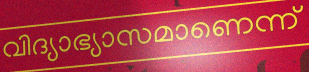
വിദ്യാഭ്യാസമാണെന്ന്